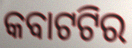
କବାଟଟିର